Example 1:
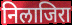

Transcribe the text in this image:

निलाजिरा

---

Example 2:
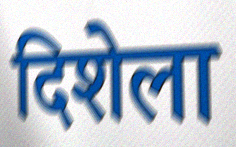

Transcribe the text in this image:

दिशेला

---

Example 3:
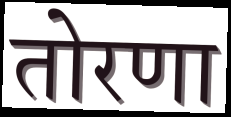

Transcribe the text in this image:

तोरणा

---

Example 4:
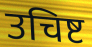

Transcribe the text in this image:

उचिष्ट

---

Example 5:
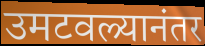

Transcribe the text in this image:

उमटवल्यानंतर